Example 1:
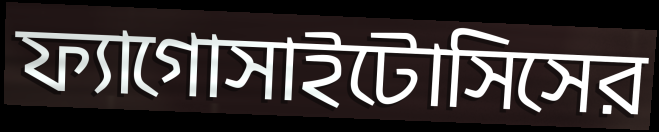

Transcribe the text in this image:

ফ্যাগোসাইটোসিসের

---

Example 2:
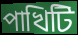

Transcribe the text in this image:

পাখিটি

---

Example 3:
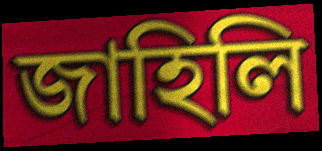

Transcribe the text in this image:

জাহিলি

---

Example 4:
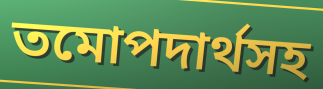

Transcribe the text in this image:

তমোপদার্থসহ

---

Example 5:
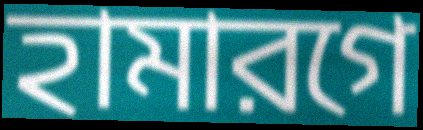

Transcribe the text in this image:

হামারগে